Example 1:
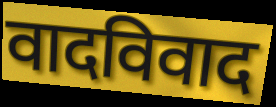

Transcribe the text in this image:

वादविवाद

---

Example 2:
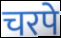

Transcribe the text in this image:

चरपे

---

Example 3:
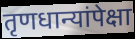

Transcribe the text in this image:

तृणधान्यांपेक्षा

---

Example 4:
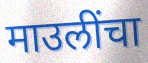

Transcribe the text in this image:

माउलींचा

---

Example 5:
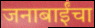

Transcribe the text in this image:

जनाबाईंचा